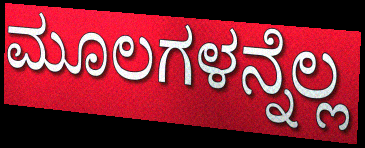
ಮೂಲಗಳನ್ನೆಲ್ಲ